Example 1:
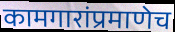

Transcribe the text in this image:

कामगारांप्रमाणेच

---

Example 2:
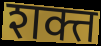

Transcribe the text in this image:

शक्त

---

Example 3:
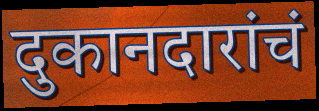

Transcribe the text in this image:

दुकानदारांचं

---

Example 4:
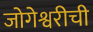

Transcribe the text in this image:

जोगेश्वरीची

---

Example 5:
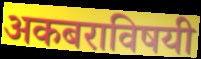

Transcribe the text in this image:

अकबराविषयी